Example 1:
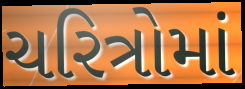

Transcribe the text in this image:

ચરિત્રોમાં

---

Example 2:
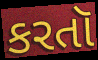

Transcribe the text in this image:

કરતૉ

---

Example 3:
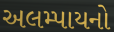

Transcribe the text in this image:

અલમ્પાયનો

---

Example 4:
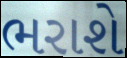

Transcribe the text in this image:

ભરાશે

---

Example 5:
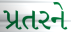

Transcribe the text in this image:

પ્રતરને